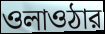
ওলাওঠার